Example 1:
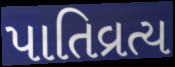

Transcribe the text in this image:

પાતિવ્રત્ય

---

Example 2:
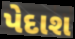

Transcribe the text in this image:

પેદાશ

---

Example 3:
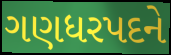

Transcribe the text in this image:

ગણધરપદને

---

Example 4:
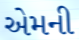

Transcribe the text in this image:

એમની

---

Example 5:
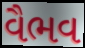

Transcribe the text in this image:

વૈભવ